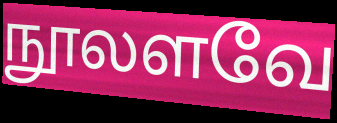
நூலளவே